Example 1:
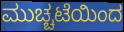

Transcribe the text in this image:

ಮುಚ್ಚಟೆಯಿಂದ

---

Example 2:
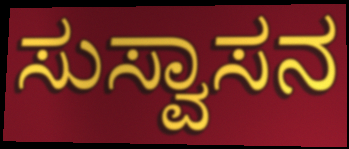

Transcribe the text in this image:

ಸುಸ್ವಾಸನ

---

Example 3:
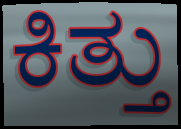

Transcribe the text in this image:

ಕಿತ್ತು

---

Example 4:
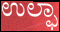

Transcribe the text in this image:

ಉಲ್ಫಾ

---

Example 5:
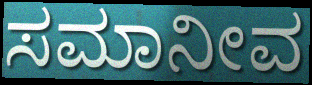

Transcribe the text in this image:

ಸಮಾನೀವ